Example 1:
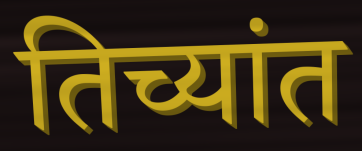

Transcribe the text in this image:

तिच्यांत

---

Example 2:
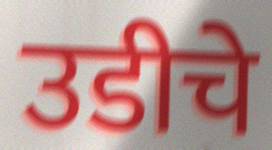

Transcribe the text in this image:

उडीचे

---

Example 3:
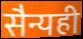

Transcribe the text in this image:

सैन्यही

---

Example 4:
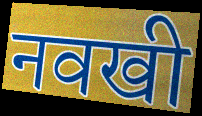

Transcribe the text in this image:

नवखी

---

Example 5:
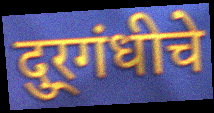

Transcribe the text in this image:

दुर्गंधीचे